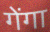
गेंगा